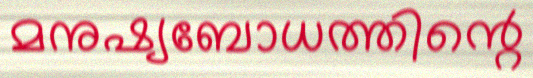
മനുഷ്യബോധത്തിന്റെ